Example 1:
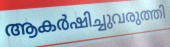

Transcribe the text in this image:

ആകർഷിച്ചുവരുത്തി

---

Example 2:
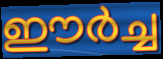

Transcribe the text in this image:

ഈർച്ച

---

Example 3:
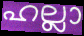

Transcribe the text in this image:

ഹല്ലാ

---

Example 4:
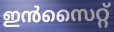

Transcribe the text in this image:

ഇൻസൈറ്റ്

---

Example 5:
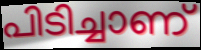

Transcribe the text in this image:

പിടിച്ചാണ്